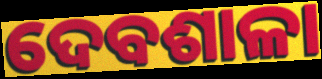
ଦେବଶାଳା